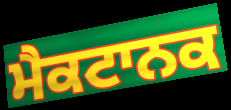
ਮੈਕਟਾਨਕ